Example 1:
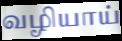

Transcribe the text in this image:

வழியாய்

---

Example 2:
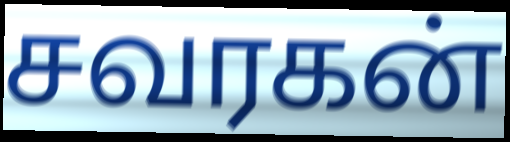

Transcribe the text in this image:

சவரகன்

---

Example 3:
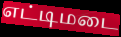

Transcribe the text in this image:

எட்டிமடை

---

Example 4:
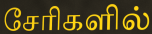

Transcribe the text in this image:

சேரிகளில்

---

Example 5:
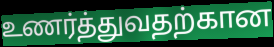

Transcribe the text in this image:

உணர்த்துவதற்கான